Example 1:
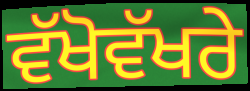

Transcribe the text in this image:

ਵੱਖੋਵੱਖਰੇ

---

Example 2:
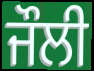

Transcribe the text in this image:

ਜੌਲੀ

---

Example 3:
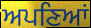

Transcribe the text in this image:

ਅਪਣਿਆਂ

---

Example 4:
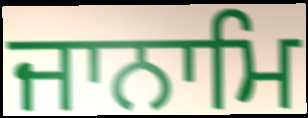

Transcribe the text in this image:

ਜਾਨਾਮਿ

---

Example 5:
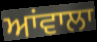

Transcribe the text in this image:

ਆਂਵਾਲਾ